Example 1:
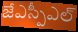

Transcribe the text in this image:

జేఎస్పీఎల్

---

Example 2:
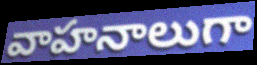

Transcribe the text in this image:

వాహనాలుగా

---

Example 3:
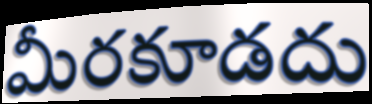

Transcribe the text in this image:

మీరకూడదు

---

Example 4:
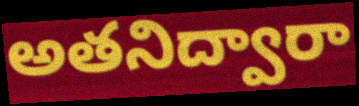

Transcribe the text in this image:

అతనిద్వారా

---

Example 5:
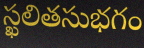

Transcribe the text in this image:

స్ఖలితసుభగం